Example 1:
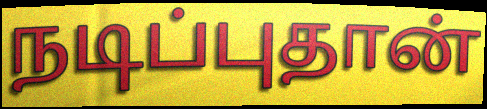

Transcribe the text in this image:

நடிப்புதான்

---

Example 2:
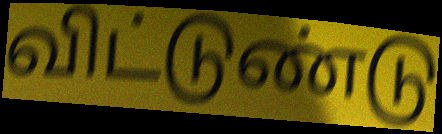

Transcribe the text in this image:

விட்டுண்டு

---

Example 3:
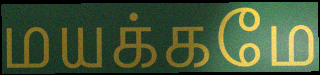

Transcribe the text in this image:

மயக்கமே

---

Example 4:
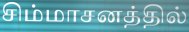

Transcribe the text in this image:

சிம்மாசனத்தில்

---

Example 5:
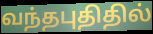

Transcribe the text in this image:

வந்தபுதிதில்